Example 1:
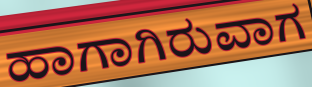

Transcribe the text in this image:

ಹಾಗಾಗಿರುವಾಗ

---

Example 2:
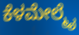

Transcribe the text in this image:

ಕೆಳಮೇಲ್ಮೈ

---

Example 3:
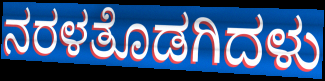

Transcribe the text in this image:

ನರಳತೊಡಗಿದಳು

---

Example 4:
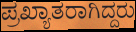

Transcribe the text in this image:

ಪ್ರಖ್ಯಾತರಾಗಿದ್ದರು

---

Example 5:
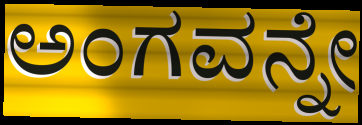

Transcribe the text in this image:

ಅಂಗವನ್ನೇ